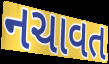
નચાવત